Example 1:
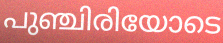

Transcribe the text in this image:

പുഞ്ചിരിയോടെ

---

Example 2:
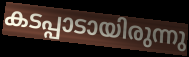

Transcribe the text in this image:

കടപ്പാടായിരുന്നു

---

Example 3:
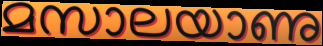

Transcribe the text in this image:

മസാലയാണു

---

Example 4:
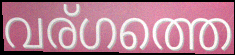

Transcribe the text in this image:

വര്ഗത്തെ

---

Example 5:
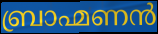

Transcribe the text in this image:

ബ്രാഹ്മണൻ